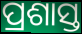
ପ୍ରଶାସ୍ତ